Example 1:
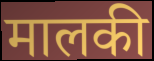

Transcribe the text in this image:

मालकी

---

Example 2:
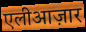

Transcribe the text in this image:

एलीआज़ार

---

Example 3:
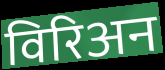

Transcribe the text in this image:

विरिअन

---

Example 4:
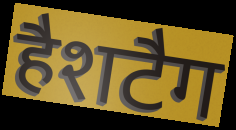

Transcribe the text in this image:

हैशटैग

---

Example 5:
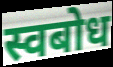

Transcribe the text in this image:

स्वबोध